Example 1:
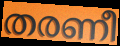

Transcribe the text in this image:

തരണീ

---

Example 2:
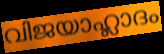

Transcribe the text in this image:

വിജയാഹ്ലാദം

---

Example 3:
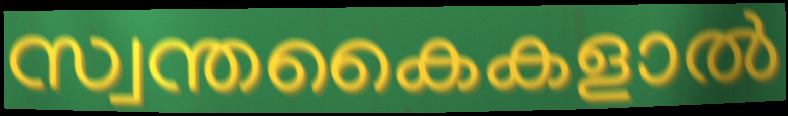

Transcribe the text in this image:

സ്വന്തകൈകളാൽ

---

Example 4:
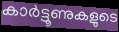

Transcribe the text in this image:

കാർട്ടൂണുകളുടെ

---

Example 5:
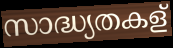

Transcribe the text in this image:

സാദ്ധ്യതകള്